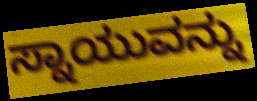
ಸ್ನಾಯುವನ್ನು